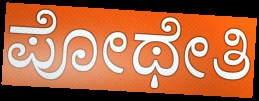
ಪೋಥೇತಿ